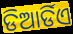
ଡିଆର୍ଡିଏ